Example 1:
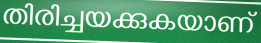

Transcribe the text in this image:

തിരിച്ചയക്കുകയാണ്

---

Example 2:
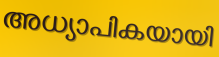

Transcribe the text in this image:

അധ്യാപികയായി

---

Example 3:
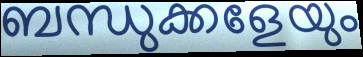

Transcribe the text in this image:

ബന്ധുക്കളേയും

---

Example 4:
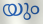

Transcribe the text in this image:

യും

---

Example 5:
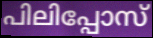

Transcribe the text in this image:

പിലിപ്പോസ്